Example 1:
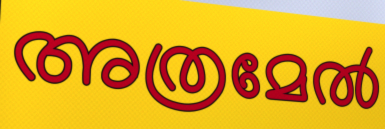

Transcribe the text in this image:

അത്രമേൽ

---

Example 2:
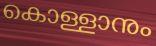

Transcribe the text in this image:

കൊള്ളാനും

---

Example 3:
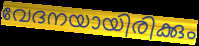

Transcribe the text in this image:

വേദനയായിരിക്കും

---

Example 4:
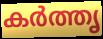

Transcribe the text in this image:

കർത്തൃ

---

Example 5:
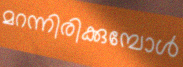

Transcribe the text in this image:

മറന്നിരിക്കുമ്പോൾ